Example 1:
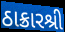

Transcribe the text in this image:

ઠાક્રારશ્રી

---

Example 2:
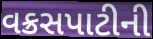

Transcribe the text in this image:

વક્રસપાટીની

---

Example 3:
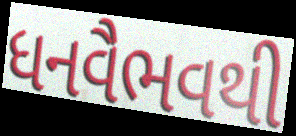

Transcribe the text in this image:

ધનવૈભવથી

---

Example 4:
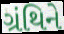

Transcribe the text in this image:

ગ્રંથિને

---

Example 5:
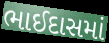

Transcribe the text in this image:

ભાઈદાસમાં